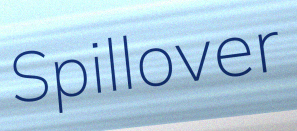
Spillover